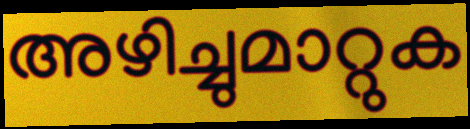
അഴിച്ചുമാറ്റുക